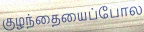
குழந்தையைப்போல